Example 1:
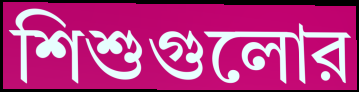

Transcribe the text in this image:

শিশুগুলোর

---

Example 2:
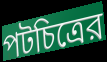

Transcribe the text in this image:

পটচিত্রের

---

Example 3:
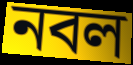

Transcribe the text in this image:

নবল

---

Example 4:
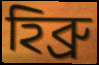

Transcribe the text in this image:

হিব্রু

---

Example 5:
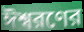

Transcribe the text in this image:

ঈশ্বরণের